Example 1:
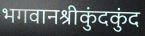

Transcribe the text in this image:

भगवानश्रीकुंदकुंद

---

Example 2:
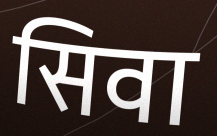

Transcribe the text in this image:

सिवा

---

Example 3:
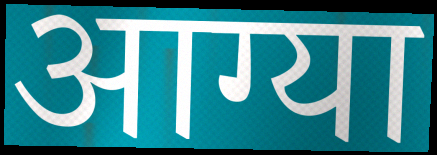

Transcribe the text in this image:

आग्या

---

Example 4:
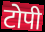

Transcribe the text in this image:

टोपी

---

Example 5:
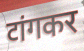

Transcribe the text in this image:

टांगकर